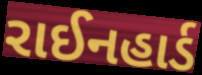
રાઈનહાર્ડ